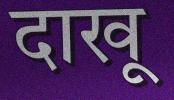
दाखू